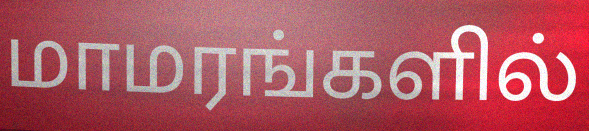
மாமரங்களில்